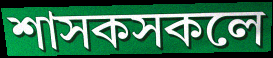
শাসকসকলে